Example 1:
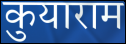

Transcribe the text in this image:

कुयाराम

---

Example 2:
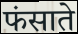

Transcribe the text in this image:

फंसाते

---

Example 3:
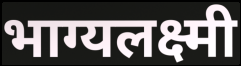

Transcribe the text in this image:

भाग्यलक्ष्मी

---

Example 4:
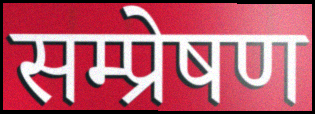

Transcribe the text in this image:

सम्प्रेषण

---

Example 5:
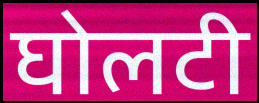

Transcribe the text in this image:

घोलटी